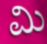
ಮಿ